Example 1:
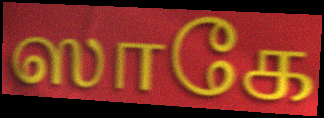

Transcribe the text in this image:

ஸாகே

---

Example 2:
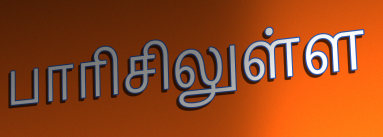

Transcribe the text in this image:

பாரிசிலுள்ள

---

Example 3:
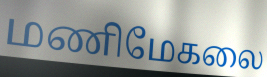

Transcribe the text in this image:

மணிமேகலை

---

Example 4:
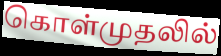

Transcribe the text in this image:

கொள்முதலில்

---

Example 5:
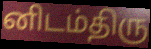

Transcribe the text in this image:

னிடம்திரு